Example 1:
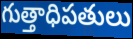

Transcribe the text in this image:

గుత్తాధిపతులు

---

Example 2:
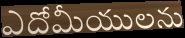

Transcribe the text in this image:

ఎదోమీయులను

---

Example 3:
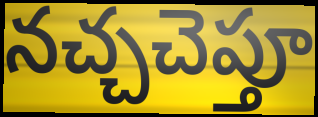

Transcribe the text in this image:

నచ్చచెప్తూ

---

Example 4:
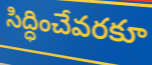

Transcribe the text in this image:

సిద్ధించేవరకూ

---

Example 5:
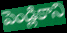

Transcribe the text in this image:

పెండ్లికాని